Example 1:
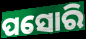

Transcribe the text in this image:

ପସୋରି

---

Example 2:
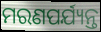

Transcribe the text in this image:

ମରଣପର୍ଯ୍ୟନ୍ତ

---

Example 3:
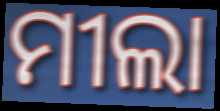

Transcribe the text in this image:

ମୀଲା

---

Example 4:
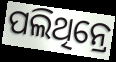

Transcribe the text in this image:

ପଲିଥିନ୍ରେ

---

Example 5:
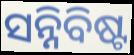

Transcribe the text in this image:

ସନ୍ନିବିଷ୍ଟ